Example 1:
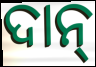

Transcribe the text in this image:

ଦାନ୍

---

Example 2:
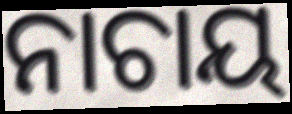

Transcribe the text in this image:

ନାଚାୟ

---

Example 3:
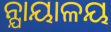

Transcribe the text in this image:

ନ୍ଯାୟାଳୟ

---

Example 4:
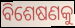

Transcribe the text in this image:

ବିଶେଷଣକୁ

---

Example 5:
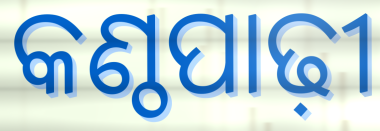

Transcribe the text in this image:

କଣ୍ଠପାଢ଼ୀ